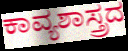
ಕಾವ್ಯಶಾಸ್ತ್ರದ